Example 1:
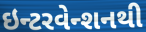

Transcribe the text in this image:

ઇન્ટરવેન્શનથી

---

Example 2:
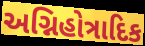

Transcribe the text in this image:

અગ્નિહોત્રાદિક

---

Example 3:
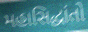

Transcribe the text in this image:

મહાસિદ્ધાંતો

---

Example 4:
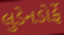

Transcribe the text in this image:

લુડેનડોર્ફે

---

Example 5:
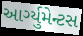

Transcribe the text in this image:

આર્ગ્યુમેન્ટસ